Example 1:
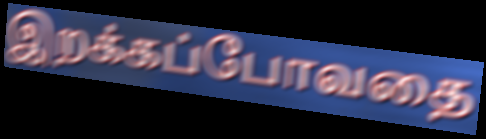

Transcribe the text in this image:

இறக்கப்போவதை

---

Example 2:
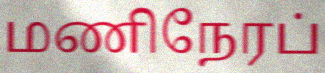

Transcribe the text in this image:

மணிநேரப்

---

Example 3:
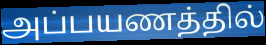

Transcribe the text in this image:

அப்பயணத்தில்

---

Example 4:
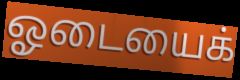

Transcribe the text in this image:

ஓடையைக்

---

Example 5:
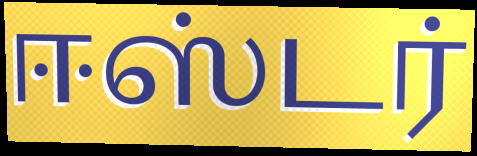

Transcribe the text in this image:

ஈஸ்டர்